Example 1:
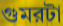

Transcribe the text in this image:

গুমরটা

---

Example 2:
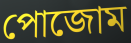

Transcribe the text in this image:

পোজোম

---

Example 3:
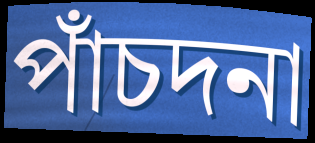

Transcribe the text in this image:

পাঁচদনা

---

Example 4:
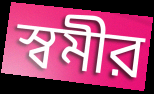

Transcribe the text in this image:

স্বমীর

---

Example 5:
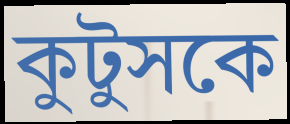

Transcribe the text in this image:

কুটুসকে